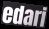
edari